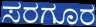
ಸರಗೂರ